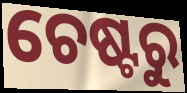
ଚେଷ୍ଟରୁ